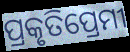
ପ୍ରକୃତିପ୍ରେମୀ